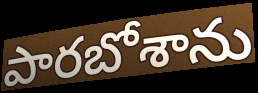
పారబోశాను